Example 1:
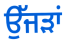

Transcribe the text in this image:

ਉੱਜੜਾਂ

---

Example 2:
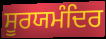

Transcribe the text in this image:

ਸੂਰਯਮੰਦਿਰ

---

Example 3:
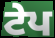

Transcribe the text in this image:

ਟੇਪ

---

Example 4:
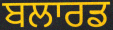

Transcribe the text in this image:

ਬਲਾਰਡ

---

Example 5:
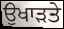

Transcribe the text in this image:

ਉਖਾੜਤੇ